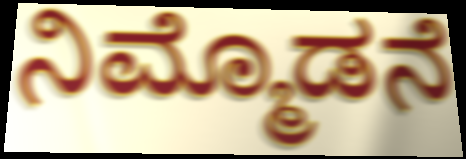
ನಿಮ್ಮೊಡನೆ